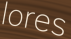
lores